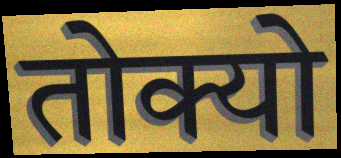
तोक्‍यो